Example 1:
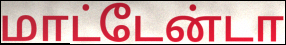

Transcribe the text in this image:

மாட்டேன்டா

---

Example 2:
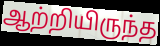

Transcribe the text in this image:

ஆற்றியிருந்த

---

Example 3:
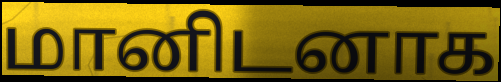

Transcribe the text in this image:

மானிடனாக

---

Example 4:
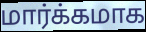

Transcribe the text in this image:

மார்க்கமாக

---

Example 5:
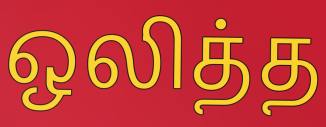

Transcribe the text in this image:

ஒலித்த